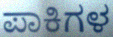
ಪಾಕಿಗಳ